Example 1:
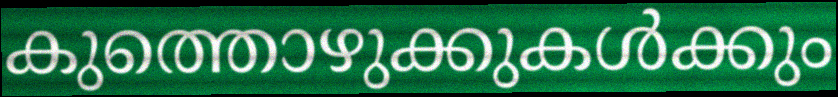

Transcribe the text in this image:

കുത്തൊഴുക്കുകൾക്കും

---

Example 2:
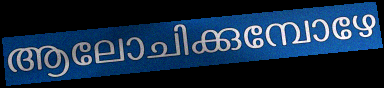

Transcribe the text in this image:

ആലോചിക്കുമ്പോഴേ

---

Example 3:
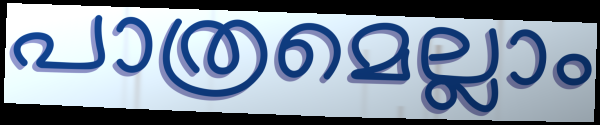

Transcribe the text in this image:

പാത്രമെല്ലാം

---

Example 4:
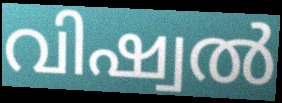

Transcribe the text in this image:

വിഷ്വൽ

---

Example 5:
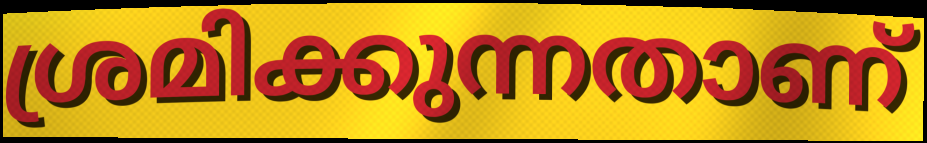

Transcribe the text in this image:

ശ്രമിക്കുന്നതാണ്